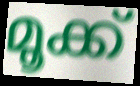
മൂക്ക്